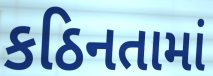
કઠિનતામાં